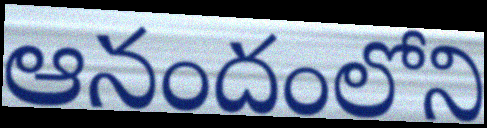
ఆనందంలోని